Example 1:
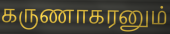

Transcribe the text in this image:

கருணாகரனும்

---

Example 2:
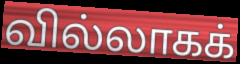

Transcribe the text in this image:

வில்லாகக்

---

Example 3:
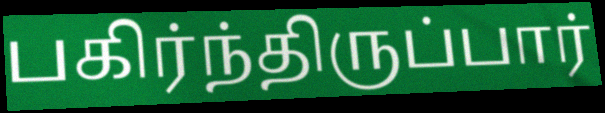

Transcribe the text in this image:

பகிர்ந்திருப்பார்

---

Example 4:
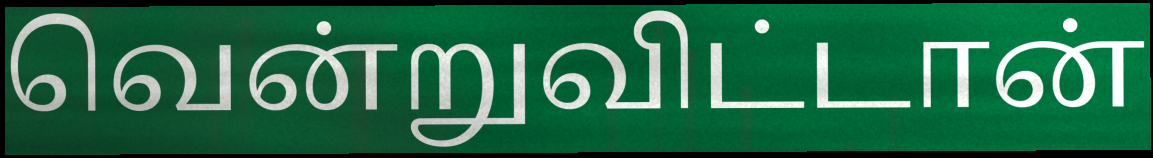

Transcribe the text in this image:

வென்றுவிட்டான்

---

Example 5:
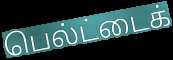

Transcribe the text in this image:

பெல்ட்டைக்